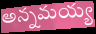
అన్నమయ్య